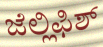
ಜೆಲ್ಲಿಫಿಶ್